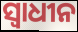
ସ୍ବାଧୀନ